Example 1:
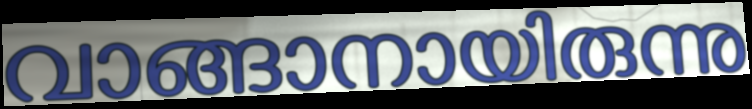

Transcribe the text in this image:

വാങ്ങാനായിരുന്നു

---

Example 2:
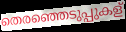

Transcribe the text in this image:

തെരഞ്ഞെടുപ്പുകള്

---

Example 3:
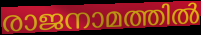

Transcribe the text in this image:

രാജനാമത്തിൽ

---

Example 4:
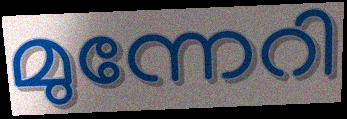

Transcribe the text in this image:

മുന്നേറി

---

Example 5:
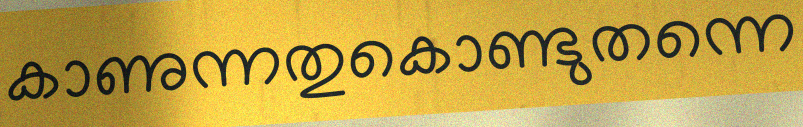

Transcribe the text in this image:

കാണുന്നതുകൊണ്ടുതന്നെ